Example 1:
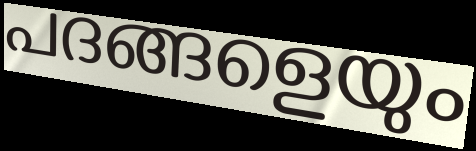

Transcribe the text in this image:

പദങ്ങളെയും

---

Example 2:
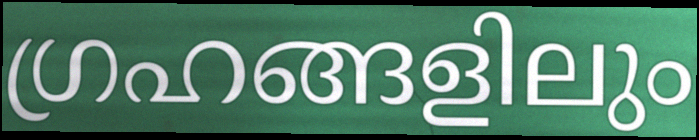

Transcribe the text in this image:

ഗ്രഹങ്ങളിലും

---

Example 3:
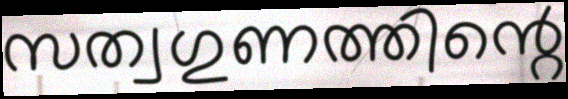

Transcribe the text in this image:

സത്വഗുണത്തിന്റെ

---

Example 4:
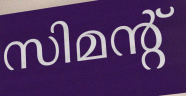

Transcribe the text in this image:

സിമന്റ്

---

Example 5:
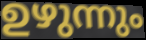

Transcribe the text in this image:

ഉഴുന്നും